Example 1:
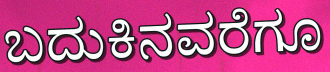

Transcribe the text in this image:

ಬದುಕಿನವರೆಗೂ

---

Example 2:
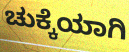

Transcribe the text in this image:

ಚುಕ್ಕೆಯಾಗಿ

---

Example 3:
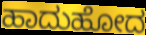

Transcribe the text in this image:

ಹಾದುಹೋದ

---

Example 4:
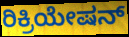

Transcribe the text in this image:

ರಿಕ್ರಿಯೇಷನ್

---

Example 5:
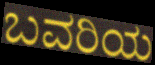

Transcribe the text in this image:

ಬವರಿಯ